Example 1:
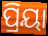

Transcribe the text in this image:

ପ୍ରିୟା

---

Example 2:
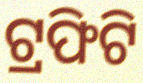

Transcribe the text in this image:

ଟ୍ରଫିଟି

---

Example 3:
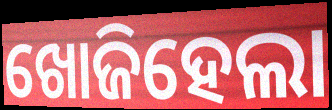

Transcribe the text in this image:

ଖୋଜିହେଲା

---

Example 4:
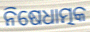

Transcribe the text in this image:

ନିଷେଧାତ୍ମକ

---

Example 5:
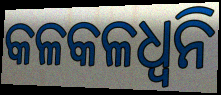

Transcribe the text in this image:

କଳକଳଧ୍ଵନି